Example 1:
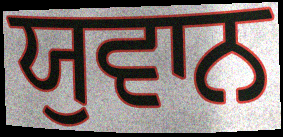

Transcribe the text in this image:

ਯੁਵਾਨ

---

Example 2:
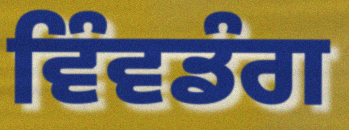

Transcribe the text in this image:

ਵਿੰਵਡੰਗ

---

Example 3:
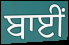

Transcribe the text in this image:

ਬਾਈਂ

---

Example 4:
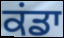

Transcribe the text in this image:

ਕਂਡਾ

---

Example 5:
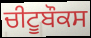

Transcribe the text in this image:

ਚੀਟੂਬੌਕਸ